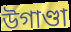
উগাণ্ডা